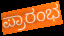
ಪ್ರಾರಂಭ